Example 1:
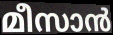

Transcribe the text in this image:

മീസാൻ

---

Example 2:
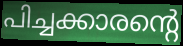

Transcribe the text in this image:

പിച്ചക്കാരന്റെ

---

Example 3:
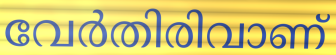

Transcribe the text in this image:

വേർതിരിവാണ്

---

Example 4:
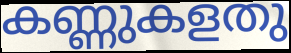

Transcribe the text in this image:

കണ്ണുകളതു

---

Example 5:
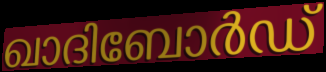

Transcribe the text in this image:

ഖാദിബോർഡ്